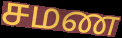
சமண